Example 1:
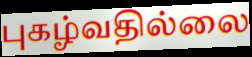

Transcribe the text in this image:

புகழ்வதில்லை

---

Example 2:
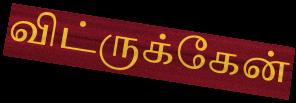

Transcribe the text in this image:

விட்ருக்கேன்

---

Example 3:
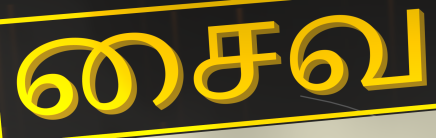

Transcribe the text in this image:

சைவ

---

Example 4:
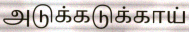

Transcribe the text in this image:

அடுக்கடுக்காய்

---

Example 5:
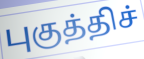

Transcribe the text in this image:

புகுத்திச்